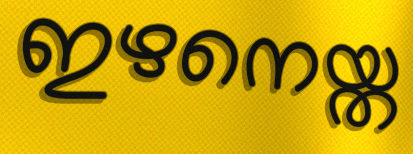
ഇഴനെയ്ത